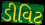
ડીવિટ